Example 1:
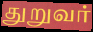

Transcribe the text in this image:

துறுவர்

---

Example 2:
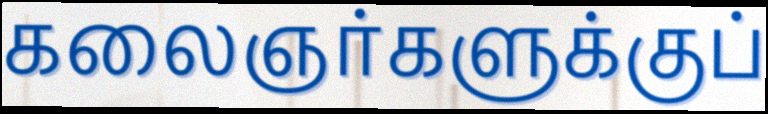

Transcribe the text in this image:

கலைஞர்களுக்குப்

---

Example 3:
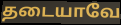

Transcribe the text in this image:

தடையாவே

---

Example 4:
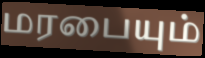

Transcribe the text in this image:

மரபையும்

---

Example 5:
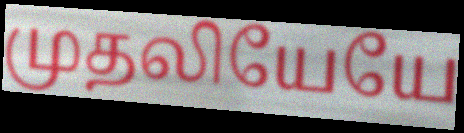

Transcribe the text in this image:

முதலியேயே